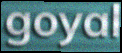
goyal